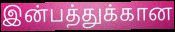
இன்பத்துக்கான